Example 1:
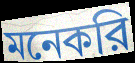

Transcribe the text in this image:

মনেকরি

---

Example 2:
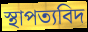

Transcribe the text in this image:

স্থাপত্যবিদ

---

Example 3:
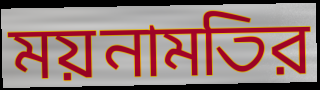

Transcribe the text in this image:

ময়নামতির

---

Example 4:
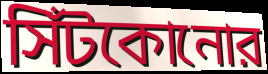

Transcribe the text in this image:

সিঁটকোনোর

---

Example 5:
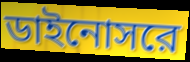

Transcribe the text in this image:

ডাইনোসরে